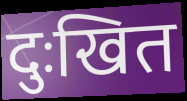
दुःखित